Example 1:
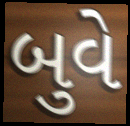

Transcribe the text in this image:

બુવે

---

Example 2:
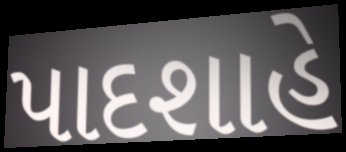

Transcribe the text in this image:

પાદશાહે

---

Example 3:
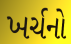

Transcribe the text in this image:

ખર્ચનો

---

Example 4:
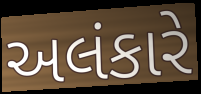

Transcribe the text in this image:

અલંકારે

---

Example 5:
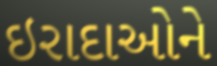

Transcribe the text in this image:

ઇરાદાઓને